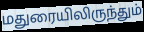
மதுரையிலிருந்தும்